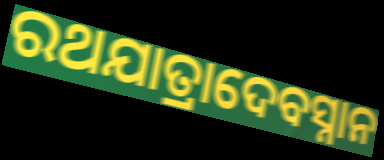
ରଥଯାତ୍ରାଦେବସ୍ନାନ